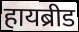
हायब्रीड